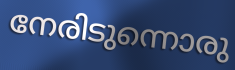
നേരിടുന്നൊരു